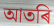
আতৰি